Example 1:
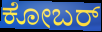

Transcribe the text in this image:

ಕೋಬರ್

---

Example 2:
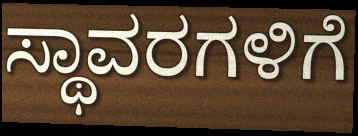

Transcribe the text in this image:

ಸ್ಥಾವರಗಳಿಗೆ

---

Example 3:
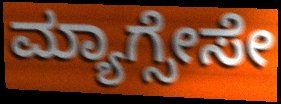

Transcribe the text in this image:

ಮ್ಯಾಗ್ಸೇಸೇ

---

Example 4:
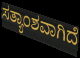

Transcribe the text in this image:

ಸತ್ಯಾಂಶವಾಗಿದೆ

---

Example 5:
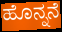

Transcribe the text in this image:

ಹೊನ್ನನೆ